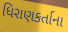
ધિરાણકર્તાના